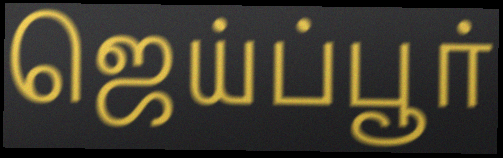
ஜெய்ப்பூர்